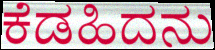
ಕೆಡಹಿದನು